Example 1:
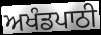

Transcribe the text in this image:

ਅਖੰਡਪਾਠੀ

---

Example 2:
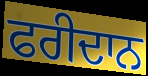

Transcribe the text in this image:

ਫਰੀਦਾਨ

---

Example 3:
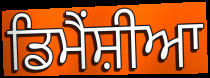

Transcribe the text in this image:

ਡਿਮੈਂਸ਼ੀਆ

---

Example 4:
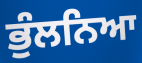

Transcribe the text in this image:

ਭੁੰਲਨਿਆ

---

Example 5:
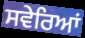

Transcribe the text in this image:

ਸਵੇਰਿਆਂ